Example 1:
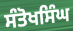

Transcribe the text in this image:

ਸੰਤੋਖਸਿੰਘ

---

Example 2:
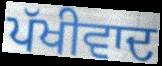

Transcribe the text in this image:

ਪੱਖੀਵਾਦ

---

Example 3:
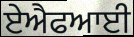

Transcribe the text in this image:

ਏਐਫਆਈ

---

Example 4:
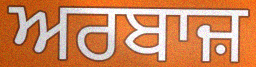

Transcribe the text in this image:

ਅਰਬਾਜ਼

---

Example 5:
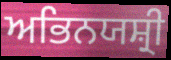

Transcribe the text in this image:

ਅਭਿਨਯਸ਼੍ਰੀ